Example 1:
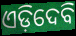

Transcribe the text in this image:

ଏଡ଼ିଦେବି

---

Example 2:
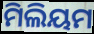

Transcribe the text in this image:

ମିଲିୟମ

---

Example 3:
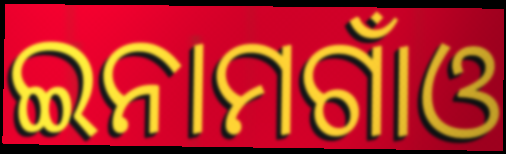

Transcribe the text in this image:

ଇନାମଗାଁଓ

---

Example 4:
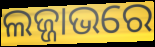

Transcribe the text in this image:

ଲଜ୍ଜାଭରେ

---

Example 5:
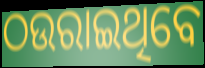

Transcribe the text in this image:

ଠଉରାଇଥିବେ